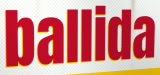
ballida